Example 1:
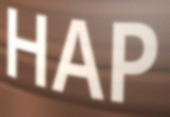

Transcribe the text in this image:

HAP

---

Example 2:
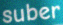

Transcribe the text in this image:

suber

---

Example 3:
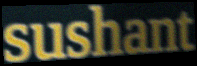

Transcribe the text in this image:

sushant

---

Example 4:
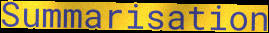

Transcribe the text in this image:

Summarisation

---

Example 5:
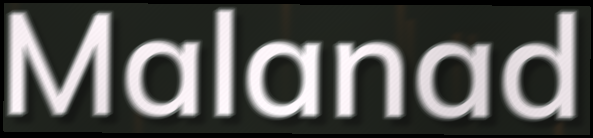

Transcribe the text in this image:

Malanad